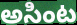
అసింట